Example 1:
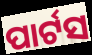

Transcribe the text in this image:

ପାର୍ଟସ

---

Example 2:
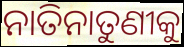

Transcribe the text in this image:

ନାତିନାତୁଣୀକୁ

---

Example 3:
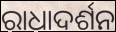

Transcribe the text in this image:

ରାଧାଦର୍ଶନ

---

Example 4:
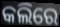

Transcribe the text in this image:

କଲିରେ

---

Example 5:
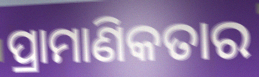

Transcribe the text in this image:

ପ୍ରାମାଣିକତାର